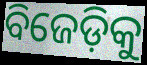
ବିଜେଡ଼ିକୁ